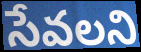
సేవలని